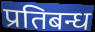
प्रतिबन्ध